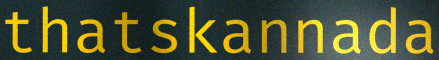
thatskannada